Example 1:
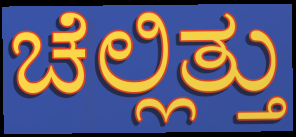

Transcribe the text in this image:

ಚೆಲ್ಲಿತ್ತು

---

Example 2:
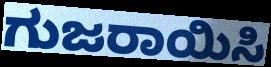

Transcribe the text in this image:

ಗುಜರಾಯಿಸಿ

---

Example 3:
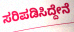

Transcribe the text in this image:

ಸರಿಪಡಿಸಿದ್ದೇನೆ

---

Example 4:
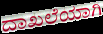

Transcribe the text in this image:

ದಾಖಲೆಯಾಗಿ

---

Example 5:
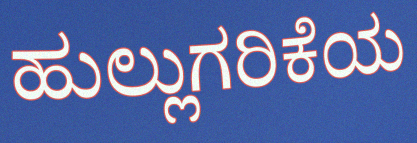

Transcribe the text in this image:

ಹುಲ್ಲುಗರಿಕೆಯ